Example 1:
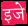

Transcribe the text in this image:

इजे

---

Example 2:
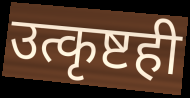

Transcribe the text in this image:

उत्कृष्टही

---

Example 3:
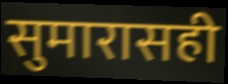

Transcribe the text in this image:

सुमारासही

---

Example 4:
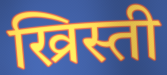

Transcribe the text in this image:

ख्रिस्ती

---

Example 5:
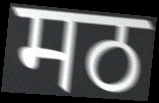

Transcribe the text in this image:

मठ